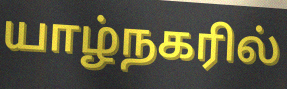
யாழ்நகரில்